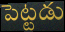
పెట్టడు